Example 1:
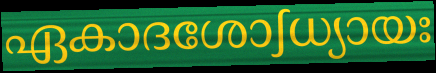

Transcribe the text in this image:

ഏകാദശോഽധ്യായഃ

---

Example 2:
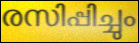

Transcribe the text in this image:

രസിപ്പിച്ചും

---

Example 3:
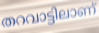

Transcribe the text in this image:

തറവാട്ടിലാണ്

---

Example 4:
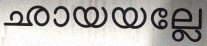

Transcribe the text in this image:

ഛായയല്ലേ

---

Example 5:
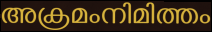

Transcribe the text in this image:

അക്രമംനിമിത്തം